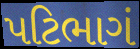
પટિભાગં